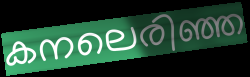
കനലെരിഞ്ഞ